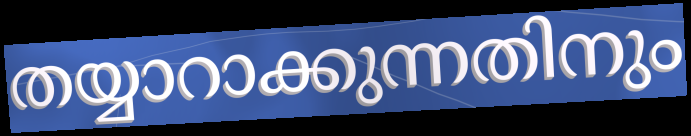
തയ്യാറാക്കുന്നതിനും